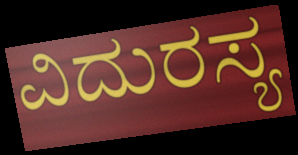
ವಿದುರಸ್ಯ